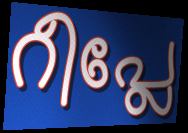
റീപ്ലേ